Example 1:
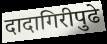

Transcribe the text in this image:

दादागिरीपुढे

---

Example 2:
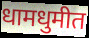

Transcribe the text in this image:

धामधुमीत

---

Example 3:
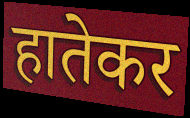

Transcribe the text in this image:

हातेकर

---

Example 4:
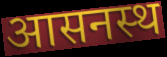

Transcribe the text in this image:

आसनस्थ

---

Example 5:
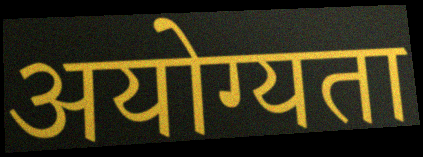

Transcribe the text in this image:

अयोग्यता